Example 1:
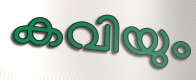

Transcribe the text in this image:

കവിയും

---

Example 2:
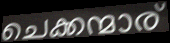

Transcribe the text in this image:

ചെക്കന്മാര്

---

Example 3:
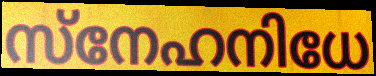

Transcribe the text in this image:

സ്നേഹനിധേ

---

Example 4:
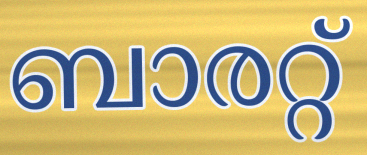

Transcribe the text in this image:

ബാരറ്റ്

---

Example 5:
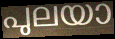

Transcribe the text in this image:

പുലയാ